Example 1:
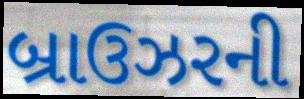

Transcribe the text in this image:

બ્રાઉઝરની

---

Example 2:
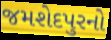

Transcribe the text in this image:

જમશેદપુરનો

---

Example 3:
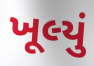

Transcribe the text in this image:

ખૂલ્યું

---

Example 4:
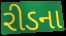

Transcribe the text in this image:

રીડના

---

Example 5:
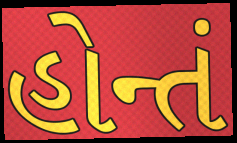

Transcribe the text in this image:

હોન્તં